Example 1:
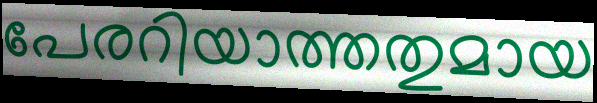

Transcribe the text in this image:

പേരറിയാത്തതുമായ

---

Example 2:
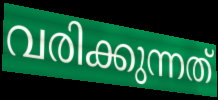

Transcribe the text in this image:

വരിക്കുന്നത്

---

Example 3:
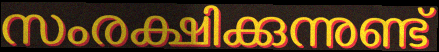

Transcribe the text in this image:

സംരക്ഷിക്കുന്നുണ്ട്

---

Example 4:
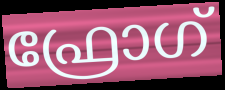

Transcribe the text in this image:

ഫ്രോഗ്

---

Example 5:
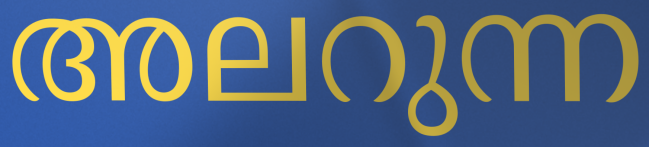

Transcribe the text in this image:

അലറുന്ന